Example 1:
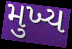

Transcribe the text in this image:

મુખ્ય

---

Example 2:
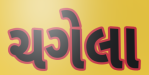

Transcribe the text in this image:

ચગેલા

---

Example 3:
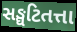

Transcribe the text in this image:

સઙ્ઘટિતત્તા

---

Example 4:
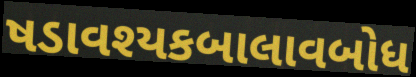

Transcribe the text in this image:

ષડાવશ્યકબાલાવબોધ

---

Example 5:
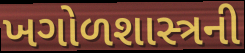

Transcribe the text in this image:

ખગોળશાસ્ત્રની